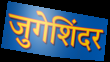
जुगेशिंदर